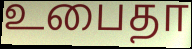
உபைதா